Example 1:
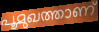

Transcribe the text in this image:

പൂമുഖത്താണ്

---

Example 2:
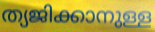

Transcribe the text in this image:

ത്യജിക്കാനുള്ള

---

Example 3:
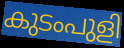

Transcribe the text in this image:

കുടംപുളി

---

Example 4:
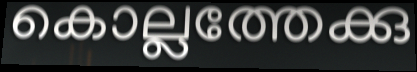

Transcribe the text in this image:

കൊല്ലത്തേക്കു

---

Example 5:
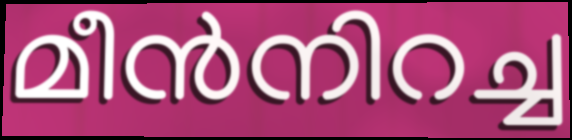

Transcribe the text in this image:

മീൻനിറച്ച